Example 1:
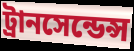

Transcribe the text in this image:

ট্রানসেন্ডেন্স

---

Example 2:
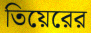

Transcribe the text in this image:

তিয়েরের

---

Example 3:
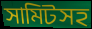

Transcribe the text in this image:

সামিটসহ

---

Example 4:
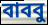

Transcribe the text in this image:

বাববু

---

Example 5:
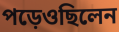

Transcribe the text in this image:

পড়েওছিলেন